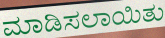
ಮಾಡಿಸಲಾಯಿತು